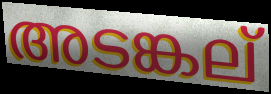
അടങ്കല്